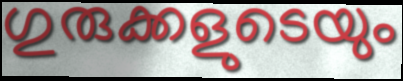
ഗുരുക്കളുടെയും